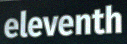
eleventh